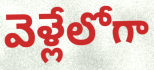
వెళ్లేలోగా